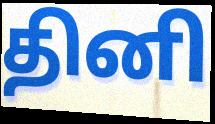
தினி